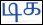
டிக